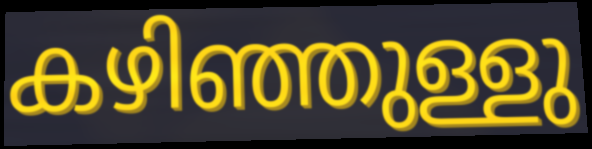
കഴിഞ്ഞുള്ളു